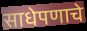
साधेपणाचे